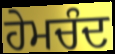
ਹੇਮਚੰਦ